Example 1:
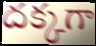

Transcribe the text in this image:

దక్కగా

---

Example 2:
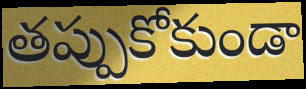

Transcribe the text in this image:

తప్పుకోకుండా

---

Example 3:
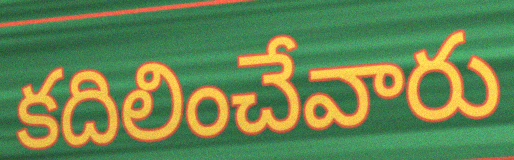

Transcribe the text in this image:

కదిలించేవారు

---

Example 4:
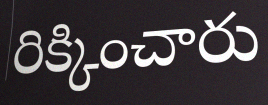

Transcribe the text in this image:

రిక్కించారు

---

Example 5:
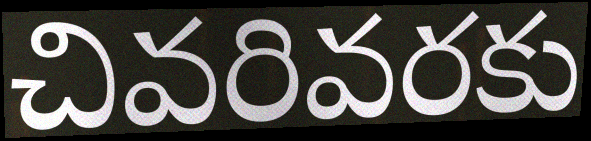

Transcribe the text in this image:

చివరివరకు